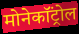
मोनेकॉंट्रोल